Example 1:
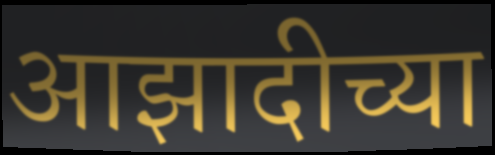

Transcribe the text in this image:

आझादीच्या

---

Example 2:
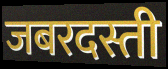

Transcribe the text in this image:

जबरदस्ती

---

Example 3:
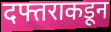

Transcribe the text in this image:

दफ्तराकडून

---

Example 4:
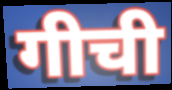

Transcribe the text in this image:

गीची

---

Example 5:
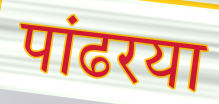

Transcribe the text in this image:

पांढरया